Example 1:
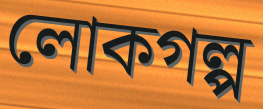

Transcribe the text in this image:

লোকগল্প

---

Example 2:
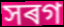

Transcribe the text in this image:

সৰগ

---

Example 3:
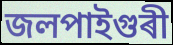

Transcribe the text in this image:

জলপাইগুৰী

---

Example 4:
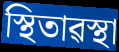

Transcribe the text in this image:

স্থিতাৱস্থা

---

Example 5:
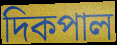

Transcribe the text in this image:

দিকপাল